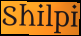
Shilpi